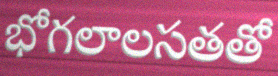
భోగలాలసతతో